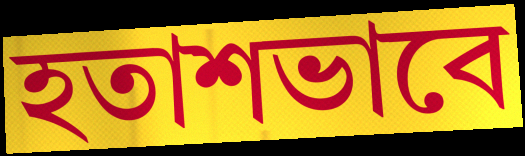
হতাশভাবে